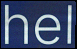
hel